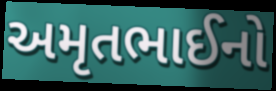
અમૃતભાઈનો